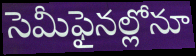
సెమీఫైనల్లోనూ